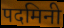
पदमिनी